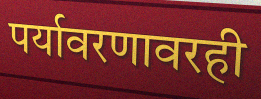
पर्यावरणावरही